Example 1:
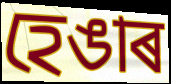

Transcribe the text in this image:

হেঙাৰ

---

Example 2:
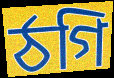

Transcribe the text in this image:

ঠগি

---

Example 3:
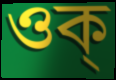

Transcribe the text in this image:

ওক্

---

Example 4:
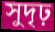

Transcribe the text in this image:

সুদৃঢ়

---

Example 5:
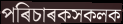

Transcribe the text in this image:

পৰিচাৰকসকলক